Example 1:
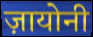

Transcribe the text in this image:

ज़ायोनी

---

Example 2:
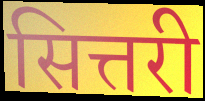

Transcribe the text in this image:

सित्तरी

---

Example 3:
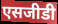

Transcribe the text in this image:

एसजीडी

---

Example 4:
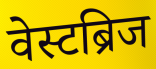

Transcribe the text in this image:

वेस्टब्रिज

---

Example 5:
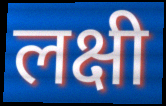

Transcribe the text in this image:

लक्षी